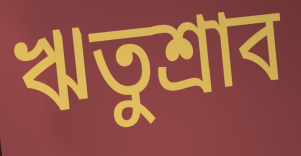
ঋতুশ্রাব